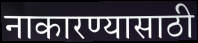
नाकारण्यासाठी